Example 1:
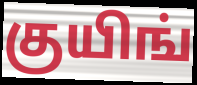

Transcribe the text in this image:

குயிங்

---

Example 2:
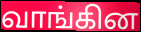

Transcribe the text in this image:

வாங்கின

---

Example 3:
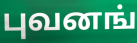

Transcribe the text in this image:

புவனங்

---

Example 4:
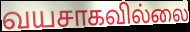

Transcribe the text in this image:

வயசாகவில்லை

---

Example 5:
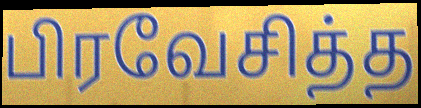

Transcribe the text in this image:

பிரவேசித்த